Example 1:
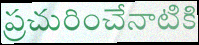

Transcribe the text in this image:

ప్రచురించేనాటికి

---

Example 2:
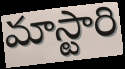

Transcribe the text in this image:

మాస్టారి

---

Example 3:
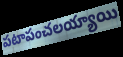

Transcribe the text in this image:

పటాపంచలయ్యాయి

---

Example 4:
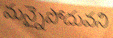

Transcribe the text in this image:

మన్నైపోదువని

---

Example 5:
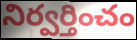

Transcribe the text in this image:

నిర్వర్తించం